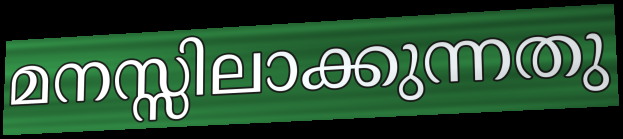
മനസ്സിലാക്കുന്നതു